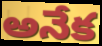
అనేక